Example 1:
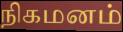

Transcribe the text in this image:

நிகமனம்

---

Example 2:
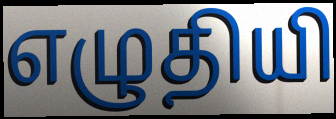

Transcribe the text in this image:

எழுதியி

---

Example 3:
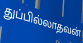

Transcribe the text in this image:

துப்பில்லாதவன்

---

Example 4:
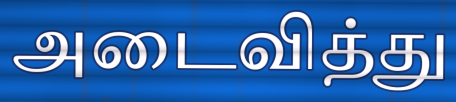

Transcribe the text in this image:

அடைவித்து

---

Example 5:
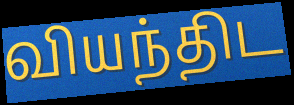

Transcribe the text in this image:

வியந்திட